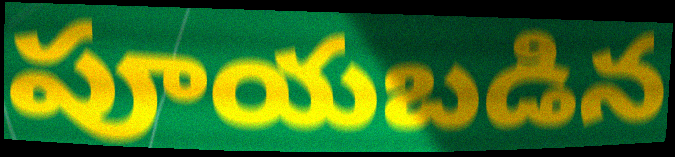
పూయబడిన